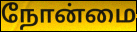
நோன்மை